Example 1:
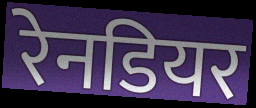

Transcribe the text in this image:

रेनडियर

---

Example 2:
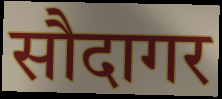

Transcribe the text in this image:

सौदागर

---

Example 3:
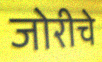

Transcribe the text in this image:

जोरीचे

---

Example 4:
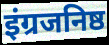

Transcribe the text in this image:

इंग्रजनिष्ठ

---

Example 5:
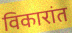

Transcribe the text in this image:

विकारांत